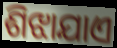
ଶିଝାଯାଏ